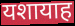
यशायाह